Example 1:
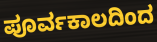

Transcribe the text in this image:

ಪೂರ್ವಕಾಲದಿಂದ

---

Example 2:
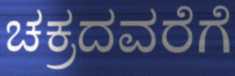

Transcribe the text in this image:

ಚಕ್ರದವರೆಗೆ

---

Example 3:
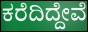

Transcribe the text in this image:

ಕರೆದಿದ್ದೇವೆ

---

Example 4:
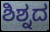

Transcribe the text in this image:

ಶಿಶ್ನದ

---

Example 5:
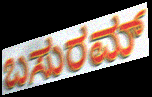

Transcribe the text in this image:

ಬಸುರಮ್